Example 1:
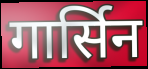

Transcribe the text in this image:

गार्सिन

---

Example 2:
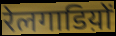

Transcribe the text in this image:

रेलगाडिय़ों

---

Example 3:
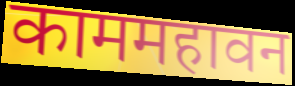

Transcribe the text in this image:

काममहावन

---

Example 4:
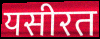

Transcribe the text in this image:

यसीरत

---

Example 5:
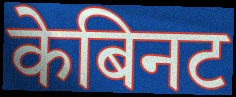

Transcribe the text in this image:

केबिनट